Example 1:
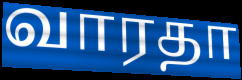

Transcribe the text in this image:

வாரதா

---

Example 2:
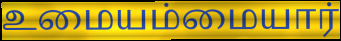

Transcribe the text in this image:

உமையம்மையார்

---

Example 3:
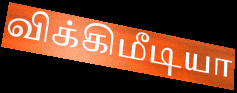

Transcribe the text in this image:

விக்கிமீடியா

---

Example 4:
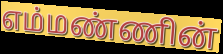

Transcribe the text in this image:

எம்மண்ணின்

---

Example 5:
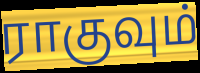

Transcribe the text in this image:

ராகுவும்